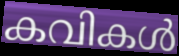
കവികൾ